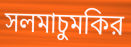
সলমাচুমকির